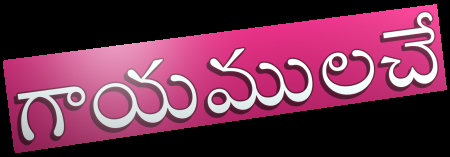
గాయములచే